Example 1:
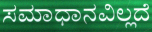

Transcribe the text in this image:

ಸಮಾಧಾನವಿಲ್ಲದೆ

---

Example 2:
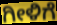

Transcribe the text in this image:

ಗೀಳಿಗೆ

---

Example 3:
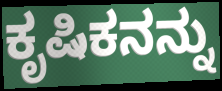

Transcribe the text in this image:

ಕೃಷಿಕನನ್ನು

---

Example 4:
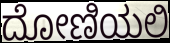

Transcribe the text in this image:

ದೋಣಿಯಲಿ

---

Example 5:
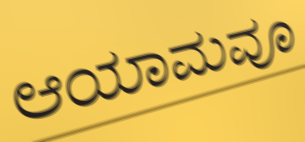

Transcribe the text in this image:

ಆಯಾಮವೂ